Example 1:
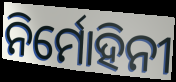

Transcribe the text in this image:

ନିର୍ମୋହିନୀ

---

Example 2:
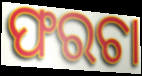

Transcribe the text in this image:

ଫରଚା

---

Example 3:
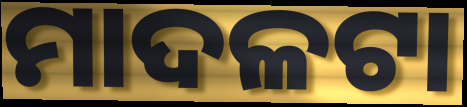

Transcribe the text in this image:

ମାଦଳଟା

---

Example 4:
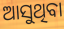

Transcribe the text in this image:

ଆସୁଥିବା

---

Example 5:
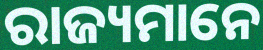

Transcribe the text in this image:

ରାଜ୍ୟମାନେ